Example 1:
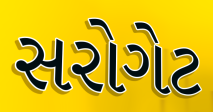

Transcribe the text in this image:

સરોગેટ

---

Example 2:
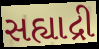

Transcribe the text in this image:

સહ્યાદ્રી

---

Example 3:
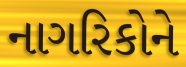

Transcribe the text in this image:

નાગરિકોને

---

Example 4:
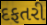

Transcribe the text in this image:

દફતરી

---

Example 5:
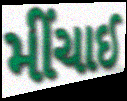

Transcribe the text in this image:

મીંચાઈ